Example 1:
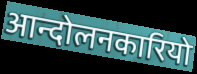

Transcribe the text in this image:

आन्दोलनकारियो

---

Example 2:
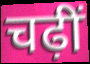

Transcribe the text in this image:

चढ़ीं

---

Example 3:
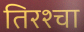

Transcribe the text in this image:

तिरश्चा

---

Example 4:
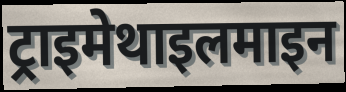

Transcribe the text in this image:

ट्राइमेथाइलमाइन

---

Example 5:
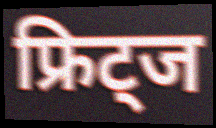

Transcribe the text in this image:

फ्रिट्ज